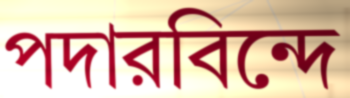
পদারবিন্দে